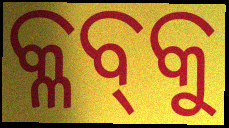
କ୍ଳବ୍‍କୁ